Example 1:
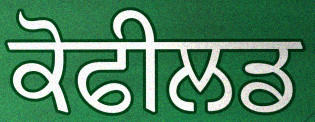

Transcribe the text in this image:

ਕੋਫੀਲਡ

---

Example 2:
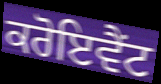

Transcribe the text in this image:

ਕਰੋਇਵੈਂਟ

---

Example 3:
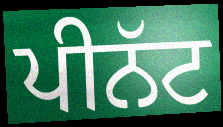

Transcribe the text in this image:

ਪੀਨੱਟ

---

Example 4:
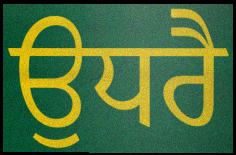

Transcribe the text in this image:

ਉਧਰੈ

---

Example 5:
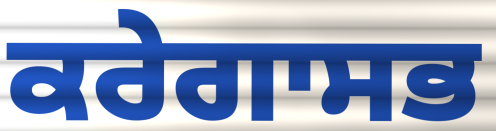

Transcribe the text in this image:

ਕਰੇਗਾਸਭ